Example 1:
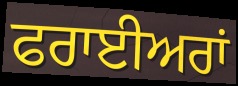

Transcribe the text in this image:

ਫਰਾਈਅਰਾਂ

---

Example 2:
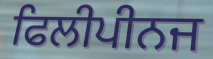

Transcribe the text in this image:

ਫਿਲੀਪੀਨਜ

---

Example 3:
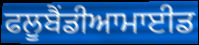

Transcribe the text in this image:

ਫਲੂਬੈਂਡੀਆਮਾਈਡ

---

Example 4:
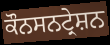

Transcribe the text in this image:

ਕੌਨਸਨਟ੍ਰੇਸ਼ਨ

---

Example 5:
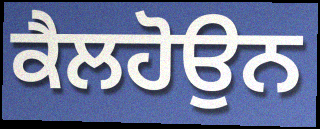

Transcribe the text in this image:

ਕੈਲਹੋਉਨ